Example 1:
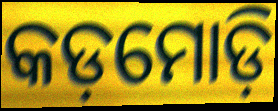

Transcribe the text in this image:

କଡ଼ମୋଡ଼ି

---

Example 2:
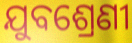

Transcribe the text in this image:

ଯୁବଶ୍ରେଣୀ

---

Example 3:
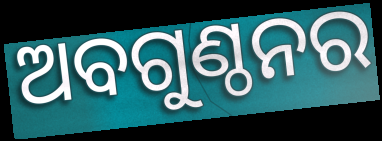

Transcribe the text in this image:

ଅବଗୁଣ୍ଠନର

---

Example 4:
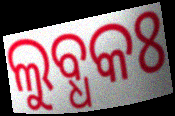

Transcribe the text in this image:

ଲୁବ୍ଧକଃ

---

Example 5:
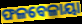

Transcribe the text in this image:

ଫଳବେଳାୟା